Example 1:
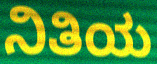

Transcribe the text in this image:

ನಿತಿಯ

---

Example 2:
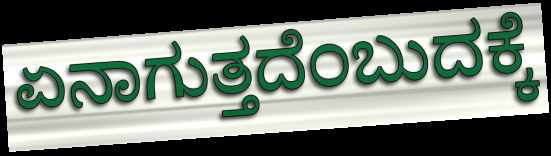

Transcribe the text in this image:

ಏನಾಗುತ್ತದೆಂಬುದಕ್ಕೆ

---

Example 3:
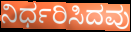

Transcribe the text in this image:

ನಿರ್ಧರಿಸಿದವು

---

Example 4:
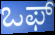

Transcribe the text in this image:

ಒಫ್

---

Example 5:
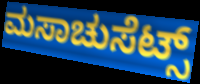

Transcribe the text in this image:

ಮಸಾಚುಸೆಟ್ಸ್